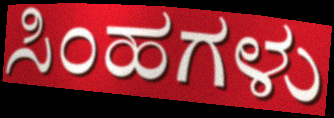
ಸಿಂಹಗಳು